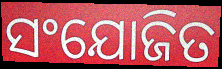
ସଂଯୋଜିତ